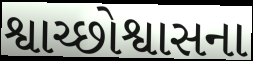
શ્વાચ્છોશ્વાસના